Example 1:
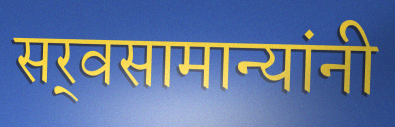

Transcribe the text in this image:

सर्वसामान्यांनी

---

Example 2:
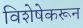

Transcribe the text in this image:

विशेषेकरून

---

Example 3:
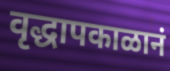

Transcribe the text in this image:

वृद्धापकाळानं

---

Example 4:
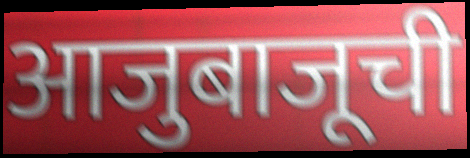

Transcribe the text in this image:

आजुबाजूची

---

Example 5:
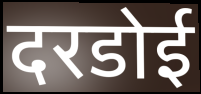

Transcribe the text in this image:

दरडोई